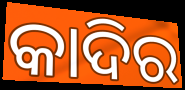
କାଦିର